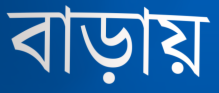
বাড়ায়